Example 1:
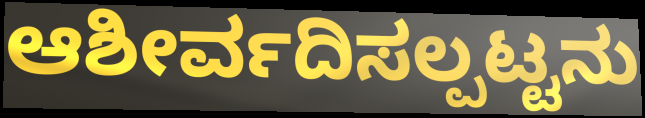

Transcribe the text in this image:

ಆಶೀರ್ವದಿಸಲ್ಪಟ್ಟನು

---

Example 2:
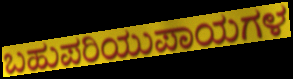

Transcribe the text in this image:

ಬಹುಪರಿಯುಪಾಯಗಳ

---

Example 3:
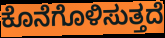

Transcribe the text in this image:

ಕೊನೆಗೊಳಿಸುತ್ತದೆ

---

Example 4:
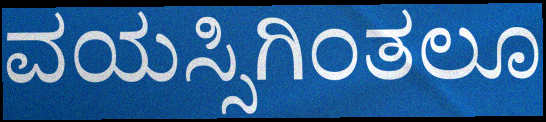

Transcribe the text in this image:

ವಯಸ್ಸಿಗಿಂತಲೂ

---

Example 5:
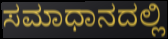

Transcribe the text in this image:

ಸಮಾಧಾನದಲ್ಲಿ